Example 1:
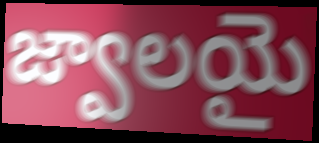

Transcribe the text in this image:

జ్వాలయై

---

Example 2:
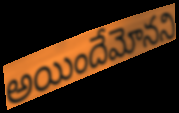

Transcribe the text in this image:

అయిందేమోనని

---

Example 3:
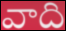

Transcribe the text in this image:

వాది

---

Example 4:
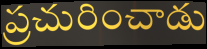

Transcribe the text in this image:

ప్రచురించాడు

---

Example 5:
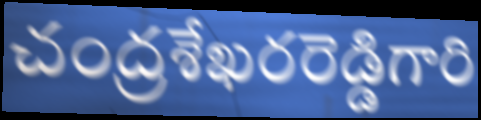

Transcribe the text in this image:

చంద్రశేఖరరెడ్డిగారి